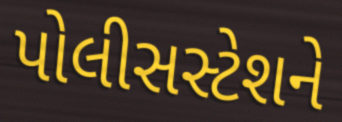
પોલીસસ્ટેશને